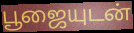
பூஜையுடன்